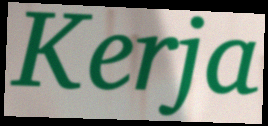
Kerja